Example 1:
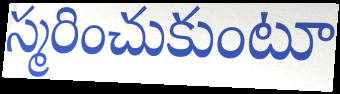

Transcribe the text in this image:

స్మరించుకుంటూ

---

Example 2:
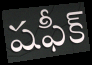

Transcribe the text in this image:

షఫీక్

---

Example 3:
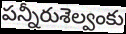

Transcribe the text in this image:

పన్నీరుశెల్వంకు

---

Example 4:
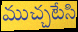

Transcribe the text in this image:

ముచ్చటేసి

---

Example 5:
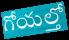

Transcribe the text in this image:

గోయల్తో